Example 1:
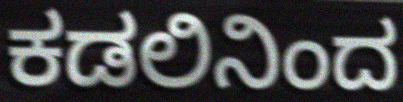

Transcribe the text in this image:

ಕಡಲಿನಿಂದ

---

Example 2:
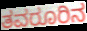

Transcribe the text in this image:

ತವರೂರಿನ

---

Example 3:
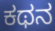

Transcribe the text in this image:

ಕಥನ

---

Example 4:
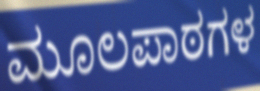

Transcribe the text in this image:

ಮೂಲಪಾಠಗಳ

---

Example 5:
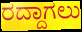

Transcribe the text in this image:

ರದ್ದಾಗಲು